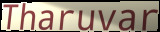
Tharuvar